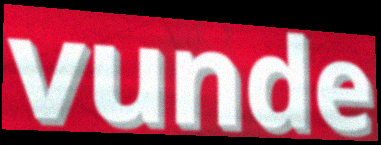
vunde